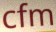
cfm